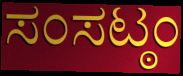
ಸಂಸಟ್ಠಂ